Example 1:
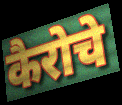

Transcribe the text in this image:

कैरोचे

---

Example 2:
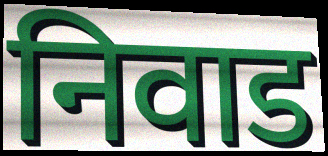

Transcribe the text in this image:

निवाड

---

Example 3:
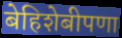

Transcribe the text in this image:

बेहिशेबीपणा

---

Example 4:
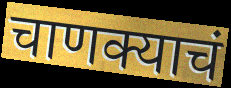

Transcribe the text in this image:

चाणक्याचं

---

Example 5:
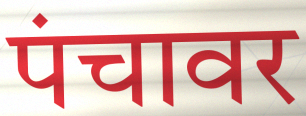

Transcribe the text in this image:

पंचावर